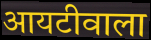
आयटीवाला